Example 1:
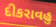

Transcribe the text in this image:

દીકરાવહુ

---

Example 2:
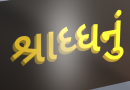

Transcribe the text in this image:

શ્રાધ્ધનું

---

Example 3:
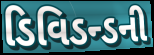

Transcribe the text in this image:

ડિવિડન્ડની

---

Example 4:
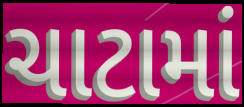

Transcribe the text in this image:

ચાટામાં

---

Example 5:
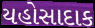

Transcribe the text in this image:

યહોસાદાક